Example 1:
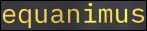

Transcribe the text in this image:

equanimus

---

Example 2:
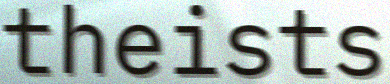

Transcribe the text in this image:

theists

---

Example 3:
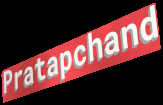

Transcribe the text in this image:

Pratapchand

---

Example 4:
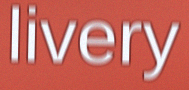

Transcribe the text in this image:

livery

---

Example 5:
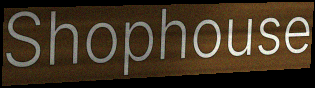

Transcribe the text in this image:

Shophouse